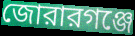
জোরারগঞ্জে